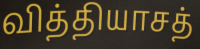
வித்தியாசத்